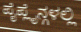
ಪೈಪ್ಲೈನ್ಗಳಲ್ಲಿ